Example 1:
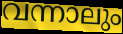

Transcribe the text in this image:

വന്നാലും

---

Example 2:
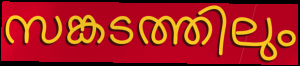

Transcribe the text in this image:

സങ്കടത്തിലും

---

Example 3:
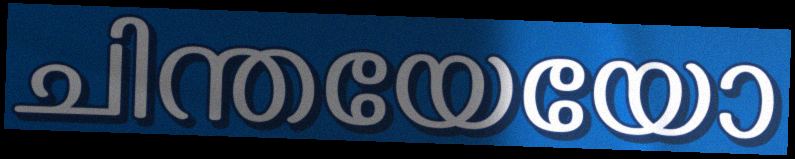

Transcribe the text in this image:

ചിന്തയേയോ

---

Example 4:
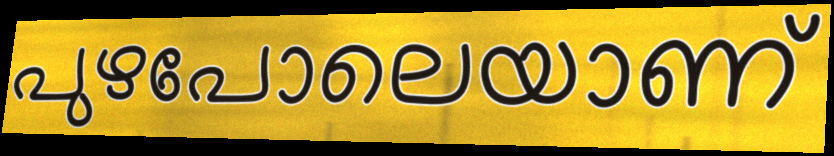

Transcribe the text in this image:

പുഴപോലെയാണ്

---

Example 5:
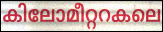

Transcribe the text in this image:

കിലോമീറ്ററകലെ